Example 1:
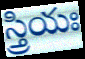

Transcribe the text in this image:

స్త్రియః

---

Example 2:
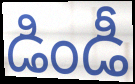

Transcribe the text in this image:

డిండీ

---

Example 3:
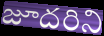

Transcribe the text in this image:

జూదరిని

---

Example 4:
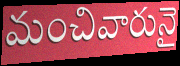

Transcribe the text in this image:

మంచివారునై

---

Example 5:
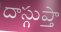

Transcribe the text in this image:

దాస్గుప్తా